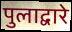
पुलाद्वारे